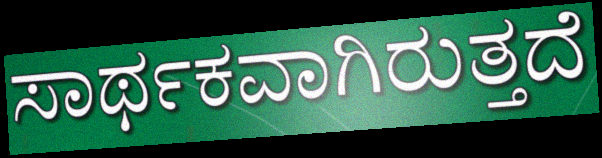
ಸಾರ್ಥಕವಾಗಿರುತ್ತದೆ